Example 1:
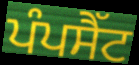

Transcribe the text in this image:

ਪੰਪਸੈੱਟ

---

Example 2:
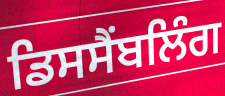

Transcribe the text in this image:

ਡਿਸਸੈਂਬਲਿੰਗ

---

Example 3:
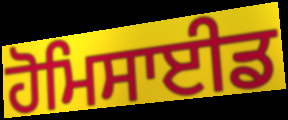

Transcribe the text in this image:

ਹੋਮਿਸਾਈਡ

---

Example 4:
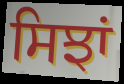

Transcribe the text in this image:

ਸਿਝਾਂ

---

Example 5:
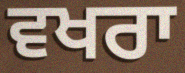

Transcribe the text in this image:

ਵਖਰਾ